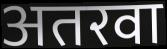
अतरवा